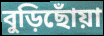
বুড়িছোঁয়া